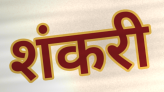
शंकरी